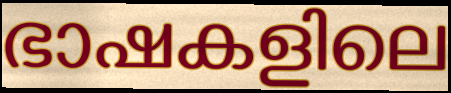
ഭാഷകളിലെ